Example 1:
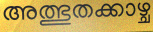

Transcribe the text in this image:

അത്ഭുതക്കാഴ്ച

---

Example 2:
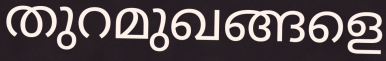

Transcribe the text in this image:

തുറമുഖങ്ങളെ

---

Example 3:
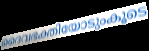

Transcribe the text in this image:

ദൈവഭക്തിയോടുംകൂടെ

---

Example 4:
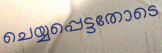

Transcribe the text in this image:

ചെയ്യപ്പെട്ടതോടെ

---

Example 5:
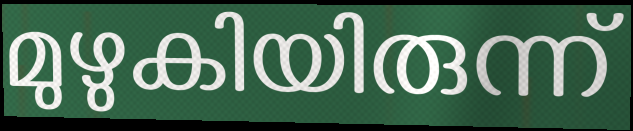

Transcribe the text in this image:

മുഴുകിയിരുന്ന്